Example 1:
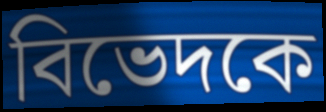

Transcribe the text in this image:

বিভেদকে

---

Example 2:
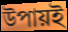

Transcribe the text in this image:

উপায়ই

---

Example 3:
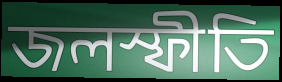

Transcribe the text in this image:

জলস্ফীতি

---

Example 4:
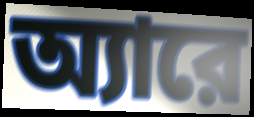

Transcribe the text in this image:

অ্যারে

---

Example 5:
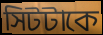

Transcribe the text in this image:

সিটটাকে